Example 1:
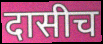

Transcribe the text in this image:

दासीच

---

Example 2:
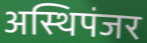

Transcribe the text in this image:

अस्थिपंजर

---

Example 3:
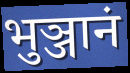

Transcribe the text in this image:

भुञ्जानं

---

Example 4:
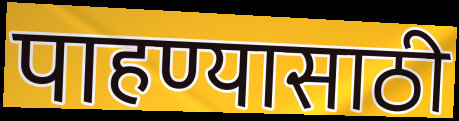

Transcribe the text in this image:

पाहण्यासाठी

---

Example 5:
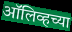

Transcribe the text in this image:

ऑलिव्हच्या